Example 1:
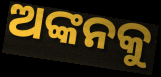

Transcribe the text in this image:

ଅଙ୍କନକୁ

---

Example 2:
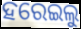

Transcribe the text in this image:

ହରେଇଲୁ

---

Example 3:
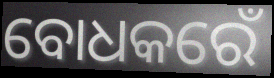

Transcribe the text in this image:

ବୋଧକରେଁ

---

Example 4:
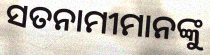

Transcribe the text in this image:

ସତନାମୀମାନଙ୍କୁ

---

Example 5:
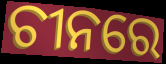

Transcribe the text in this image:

ଚୀନରେ